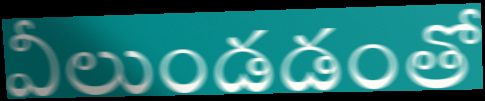
వీలుండడంతో